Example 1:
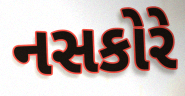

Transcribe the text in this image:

નસકોરે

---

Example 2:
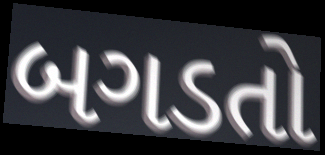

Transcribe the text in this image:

બગડતો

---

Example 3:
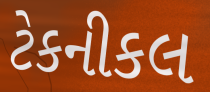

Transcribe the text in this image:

ટેકનીકલ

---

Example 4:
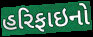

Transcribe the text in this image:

હરિફાઇનો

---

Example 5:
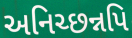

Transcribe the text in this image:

અનિચ્છન્નપિ